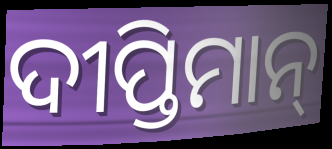
ଦୀପ୍ତିମାନ୍